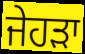
ਜੇਹੜਾ